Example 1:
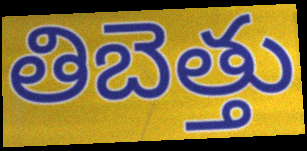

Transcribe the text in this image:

తిబెత్తు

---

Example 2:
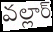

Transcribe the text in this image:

వల్లార్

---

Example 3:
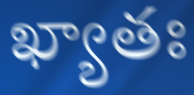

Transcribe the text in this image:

ఖ్యాతః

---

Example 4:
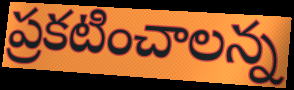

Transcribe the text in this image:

ప్రకటించాలన్న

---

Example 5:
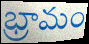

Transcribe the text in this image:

భ్రామం